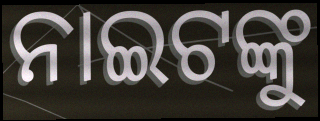
ନାଇଟଙ୍କୁ